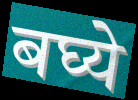
बघ्ये